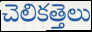
చెలికత్తెలు